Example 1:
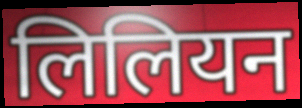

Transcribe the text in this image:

लिलियन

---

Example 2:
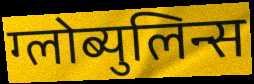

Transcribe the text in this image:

ग्लोब्युलिन्स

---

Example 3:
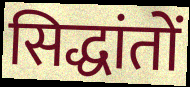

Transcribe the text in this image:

सिद्धांतों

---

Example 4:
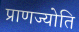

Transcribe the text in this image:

प्राणज्योति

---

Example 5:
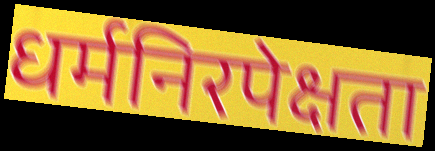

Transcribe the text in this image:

धर्मनिरपेक्षता